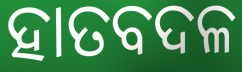
ହାତବଦଳ